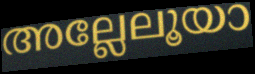
അല്ലേലൂയാ